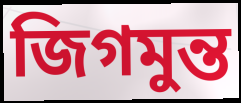
জিগমুন্ত